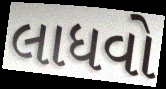
લાધવો